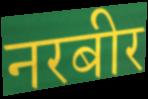
नरबीर